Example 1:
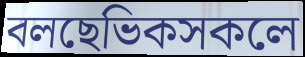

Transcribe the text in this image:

বলছেভিকসকলে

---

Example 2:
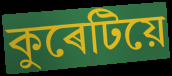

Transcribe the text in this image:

কুৰেটিয়ে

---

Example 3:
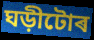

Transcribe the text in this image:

ঘড়ীটোৰ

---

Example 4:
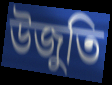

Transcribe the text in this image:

উজুতি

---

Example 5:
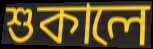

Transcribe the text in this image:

শুকালে